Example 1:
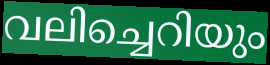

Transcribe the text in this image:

വലിച്ചെറിയും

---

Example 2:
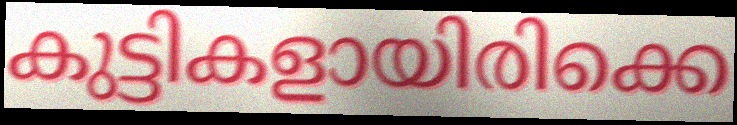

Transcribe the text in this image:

കുട്ടികളായിരിക്കെ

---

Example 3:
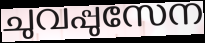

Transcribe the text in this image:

ചുവപ്പുസേന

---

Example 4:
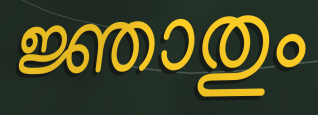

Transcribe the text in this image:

ജ്ഞാതും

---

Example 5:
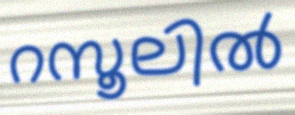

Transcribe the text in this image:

റസൂലിൽ